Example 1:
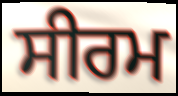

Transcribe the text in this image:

ਸੀਰਮ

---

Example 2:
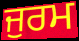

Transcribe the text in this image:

ਜੁਰਮ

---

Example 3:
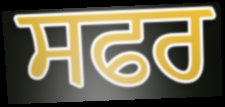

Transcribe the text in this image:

ਸਫਰ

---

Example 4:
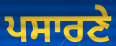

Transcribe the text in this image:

ਪਸਾਰਣੇ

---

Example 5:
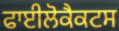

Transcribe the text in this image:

ਫਾਈਲੋਕੈਕਟਸ